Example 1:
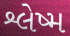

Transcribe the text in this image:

શ્લેષ્મ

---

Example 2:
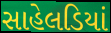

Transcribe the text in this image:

સાહેલડિયાં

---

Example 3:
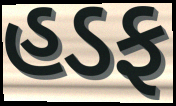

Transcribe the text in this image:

હડફ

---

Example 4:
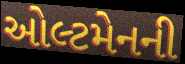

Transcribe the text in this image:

ઓલ્ટમેનની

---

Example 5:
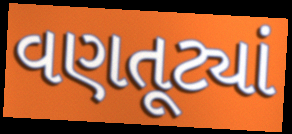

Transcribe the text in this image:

વણતૂટ્યાં